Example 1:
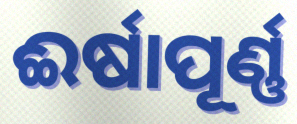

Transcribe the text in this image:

ଈର୍ଷାପୂର୍ଣ୍ଣ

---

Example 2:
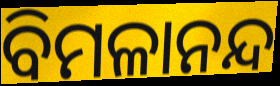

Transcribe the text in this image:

ବିମଳାନନ୍ଦ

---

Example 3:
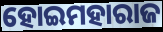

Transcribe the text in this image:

ହୋଇମହାରାଜ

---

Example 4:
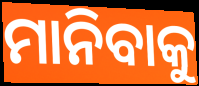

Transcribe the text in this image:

ମାନିବାକୁ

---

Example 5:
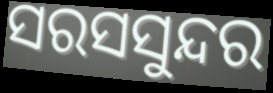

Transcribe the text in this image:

ସରସସୁନ୍ଦର